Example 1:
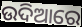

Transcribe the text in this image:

ଉଦିଆରେ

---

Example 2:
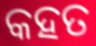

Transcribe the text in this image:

କହତ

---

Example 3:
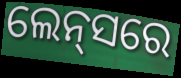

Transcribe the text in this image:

ଲେନ୍‌ସରେ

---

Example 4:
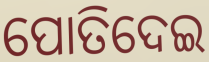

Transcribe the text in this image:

ପୋତିଦେଇ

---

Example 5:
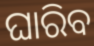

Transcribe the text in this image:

ଘାରିବ